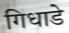
गिधाडे